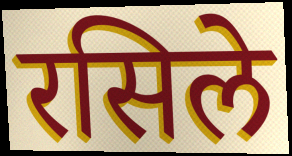
रसिले